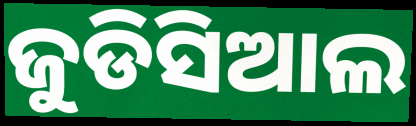
ଜୁଡିସିଆଲ